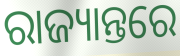
ରାଜ୍ୟାନ୍ତରେ